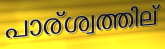
പാര്ശ്വത്തില്